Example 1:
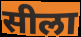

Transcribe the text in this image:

सीला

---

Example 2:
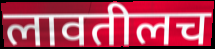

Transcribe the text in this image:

लावतीलच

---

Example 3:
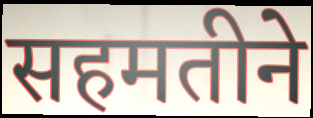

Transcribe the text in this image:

सहमतीने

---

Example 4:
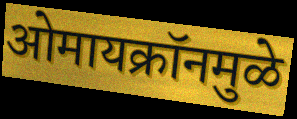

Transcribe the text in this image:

ओमायक्रॉनमुळे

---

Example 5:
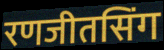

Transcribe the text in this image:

रणजीतसिंग